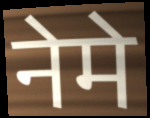
नेमे